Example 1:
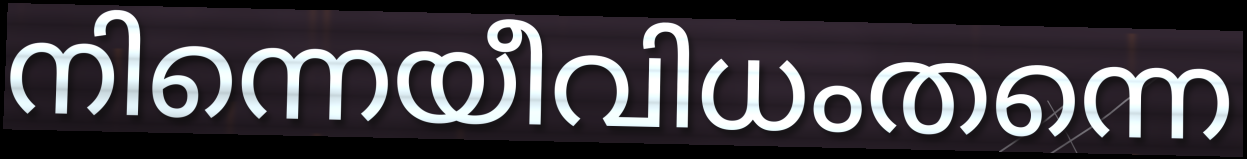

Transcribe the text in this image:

നിന്നെയീവിധംതന്നെ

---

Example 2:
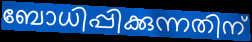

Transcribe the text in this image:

ബോധിപ്പിക്കുന്നതിന്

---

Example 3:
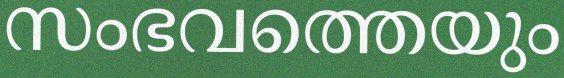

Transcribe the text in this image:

സംഭവത്തെയും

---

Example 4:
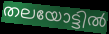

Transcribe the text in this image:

തലയോട്ടിൽ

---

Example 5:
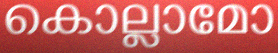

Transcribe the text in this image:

കൊല്ലാമോ